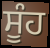
ਸੂੰਹ